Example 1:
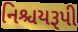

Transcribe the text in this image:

નિશ્ચયરૂપી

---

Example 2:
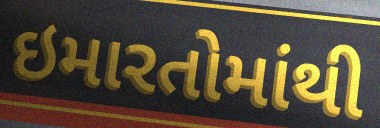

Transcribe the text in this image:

ઇમારતોમાંથી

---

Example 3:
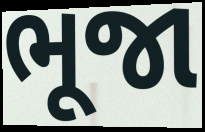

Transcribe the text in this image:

ભૂજા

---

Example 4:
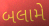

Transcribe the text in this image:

બલામે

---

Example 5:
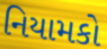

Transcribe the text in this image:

નિયામકો